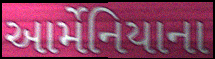
આર્મેનિયાના